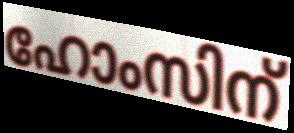
ഹോംസിന്